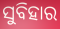
ସୁବିହାର